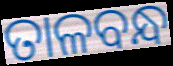
ତାଳବନ୍ଧ